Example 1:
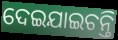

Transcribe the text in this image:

ଦେଇଯାଇଚନ୍ତି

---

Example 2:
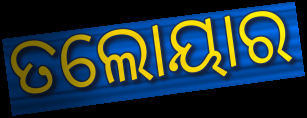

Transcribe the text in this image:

ତଲୋୟାର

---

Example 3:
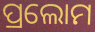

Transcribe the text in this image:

ପ୍ରଲୋମ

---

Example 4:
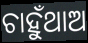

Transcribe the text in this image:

ଚାହୁଁଥାଅ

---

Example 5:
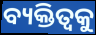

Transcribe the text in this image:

ବ୍ୟକ୍ତିତ୍ଵକୁ